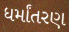
ધર્માંતરણ